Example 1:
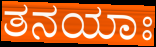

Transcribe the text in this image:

ತನಯಾಃ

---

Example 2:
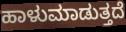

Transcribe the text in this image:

ಹಾಳುಮಾಡುತ್ತದೆ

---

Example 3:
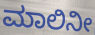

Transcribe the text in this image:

ಮಾಲಿನೀ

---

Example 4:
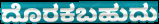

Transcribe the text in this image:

ದೊರಕಬಹುದು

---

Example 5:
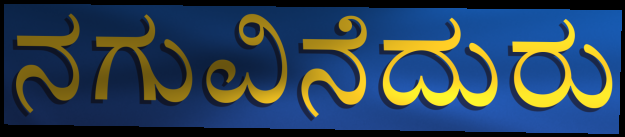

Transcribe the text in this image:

ನಗುವಿನೆದುರು